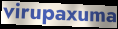
virupaxuma